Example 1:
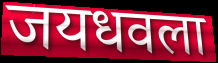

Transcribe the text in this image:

जयधवला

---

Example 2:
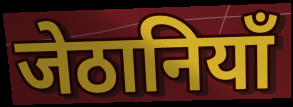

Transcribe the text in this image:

जेठानियाँ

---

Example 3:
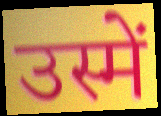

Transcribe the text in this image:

उस्में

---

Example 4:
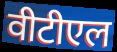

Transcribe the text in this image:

वीटीएल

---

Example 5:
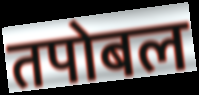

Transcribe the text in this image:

तपोबल